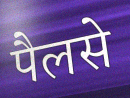
पैलसे